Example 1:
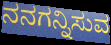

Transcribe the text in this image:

ನನಗನ್ನಿಸುವ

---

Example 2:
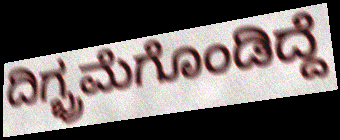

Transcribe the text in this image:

ದಿಗ್ಭ್ರಮೆಗೊಂಡಿದ್ದೆ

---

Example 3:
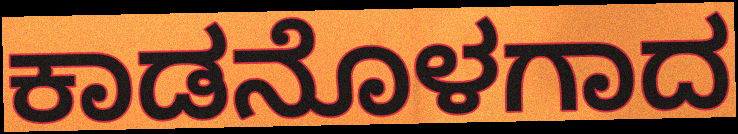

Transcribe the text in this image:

ಕಾಡನೊಳಗಾದ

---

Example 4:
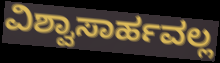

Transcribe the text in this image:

ವಿಶ್ವಾಸಾರ್ಹವಲ್ಲ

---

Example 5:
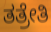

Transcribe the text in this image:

ತತ್ರೇತಿ